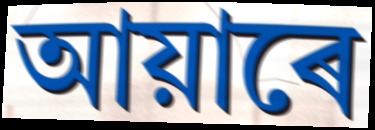
আয়াৰে